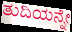
ತುದಿಯನ್ನೇ